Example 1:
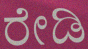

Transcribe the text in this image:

ರೇಡಿ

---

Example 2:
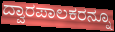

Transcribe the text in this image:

ದ್ವಾರಪಾಲಕರನ್ನೂ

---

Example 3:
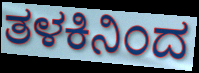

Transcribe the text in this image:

ತಳಕಿನಿಂದ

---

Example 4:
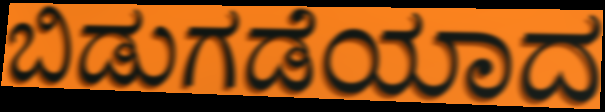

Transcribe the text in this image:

ಬಿಡುಗಡೆಯಾದ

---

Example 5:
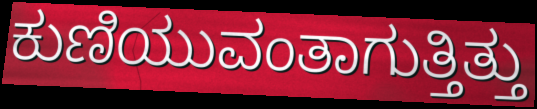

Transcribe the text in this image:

ಕುಣಿಯುವಂತಾಗುತ್ತಿತ್ತು